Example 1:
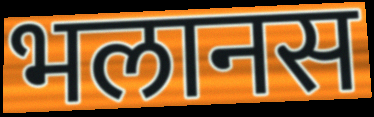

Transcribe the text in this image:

भलानस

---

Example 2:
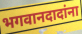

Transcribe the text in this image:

भगवानदादांना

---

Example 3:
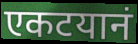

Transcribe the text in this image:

एकटयानं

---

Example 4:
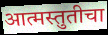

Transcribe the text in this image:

आत्मस्तुतीचा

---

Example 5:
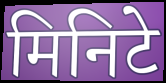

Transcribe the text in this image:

मिनिटे